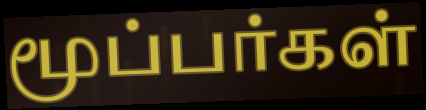
மூப்பர்கள்